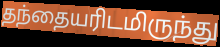
தந்தையரிடமிருந்து